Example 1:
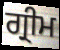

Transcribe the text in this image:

ਗ੍ਰੀਮ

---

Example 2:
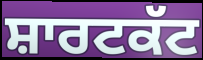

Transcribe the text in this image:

ਸ਼ਾਰਟਕੱਟ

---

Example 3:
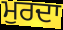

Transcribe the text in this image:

ਮੁਰਦਾ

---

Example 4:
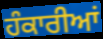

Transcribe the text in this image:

ਹੰਕਾਰੀਆਂ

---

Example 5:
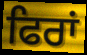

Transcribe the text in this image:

ਫਿਰਾਂ